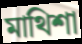
মাথিশা